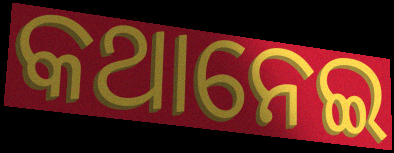
କଥାନେଇ